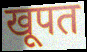
खूपत